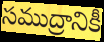
సముద్రానికీ